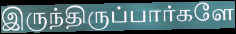
இருந்திருப்பார்களே